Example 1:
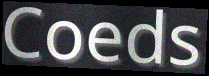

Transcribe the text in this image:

Coeds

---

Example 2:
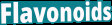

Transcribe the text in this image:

Flavonoids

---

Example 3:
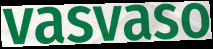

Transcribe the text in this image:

vasvaso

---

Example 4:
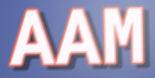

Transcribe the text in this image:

AAM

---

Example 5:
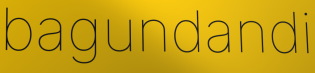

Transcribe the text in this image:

bagundandi